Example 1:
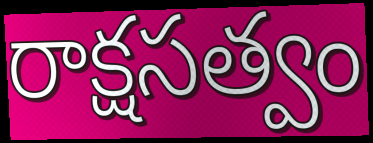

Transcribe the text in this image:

రాక్షసత్వం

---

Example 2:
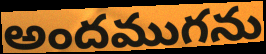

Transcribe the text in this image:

అందముగను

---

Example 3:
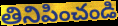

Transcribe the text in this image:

తినిపించండి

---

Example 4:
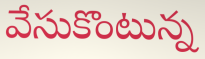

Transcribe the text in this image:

వేసుకొంటున్న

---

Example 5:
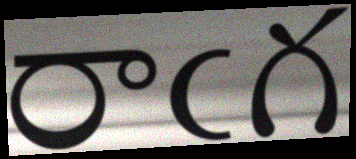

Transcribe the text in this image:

రాఁగ